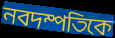
নবদম্পতিকে